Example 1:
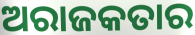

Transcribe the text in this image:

ଅରାଜକତାର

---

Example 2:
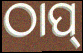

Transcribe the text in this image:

ଠାପ୍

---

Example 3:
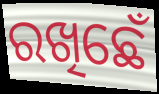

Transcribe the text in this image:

ରଖିଛେଁ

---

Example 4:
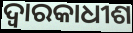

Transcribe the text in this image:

ଦ୍ୱାରକାଧୀଶ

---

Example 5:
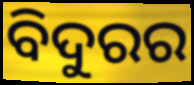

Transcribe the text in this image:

ବିଦୁରର